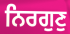
ਨਿਰਗੁਣੁ